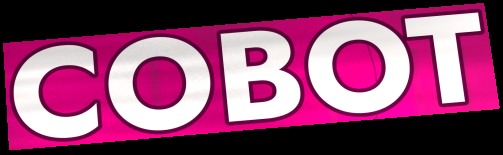
COBOT